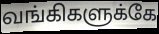
வங்கிகளுக்கே